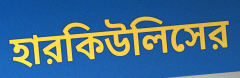
হারকিউলিসের